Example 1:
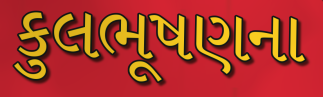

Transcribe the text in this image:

કુલભૂષણના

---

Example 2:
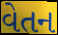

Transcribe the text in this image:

વેતન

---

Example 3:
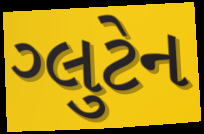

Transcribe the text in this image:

ગ્લુટેન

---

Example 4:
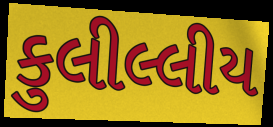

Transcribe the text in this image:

કુલીલ્લીય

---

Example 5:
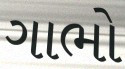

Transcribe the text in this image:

ગાભો